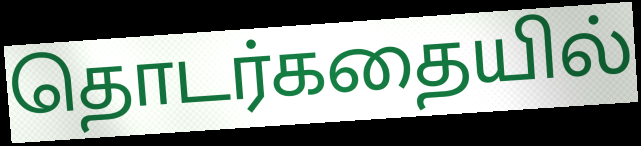
தொடர்கதையில்